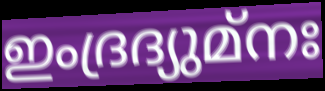
ഇംദ്രദ്യുമ്നഃ